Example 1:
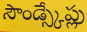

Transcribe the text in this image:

సౌండ్స్కేప్లు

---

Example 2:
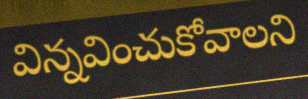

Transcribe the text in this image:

విన్నవించుకోవాలని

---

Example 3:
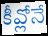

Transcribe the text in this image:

కీవ్లోనే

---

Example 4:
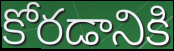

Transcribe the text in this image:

కోరడానికి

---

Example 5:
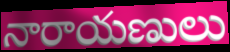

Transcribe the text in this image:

నారాయణులు